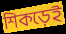
শিকড়েই